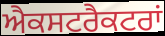
ਐਕਸਟਰੈਕਟਰਾਂ